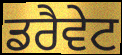
ਡਰੈਵੇਟ